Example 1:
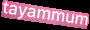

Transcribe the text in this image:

tayammum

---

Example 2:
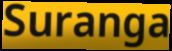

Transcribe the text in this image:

Suranga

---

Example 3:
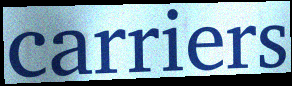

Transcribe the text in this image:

carriers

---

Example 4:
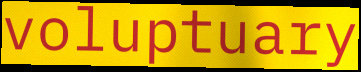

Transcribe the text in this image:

voluptuary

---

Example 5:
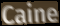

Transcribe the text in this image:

Caine